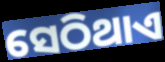
ସେଠିଥାଏ